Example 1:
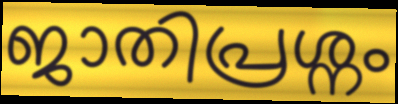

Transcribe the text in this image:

ജാതിപ്രശ്നം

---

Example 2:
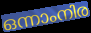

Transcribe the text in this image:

ഒന്നാംനിര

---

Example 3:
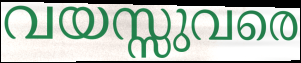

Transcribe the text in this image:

വയസ്സുവരെ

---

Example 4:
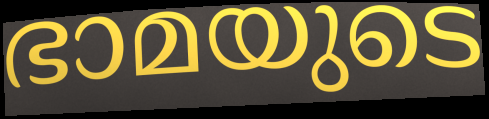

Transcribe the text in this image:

ഭാമയുടെ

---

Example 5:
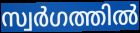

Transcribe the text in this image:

സ്വർഗത്തിൽ